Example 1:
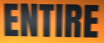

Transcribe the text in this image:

ENTIRE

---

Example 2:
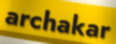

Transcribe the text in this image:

archakar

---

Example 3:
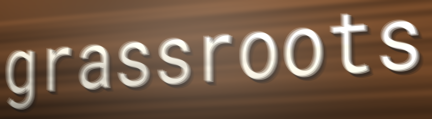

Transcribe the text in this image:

grassroots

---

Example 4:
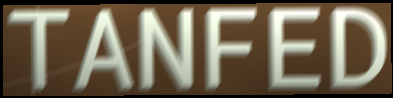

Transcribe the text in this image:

TANFED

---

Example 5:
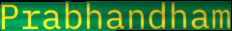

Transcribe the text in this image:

Prabhandham